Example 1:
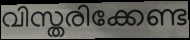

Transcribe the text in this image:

വിസ്തരിക്കേണ്ട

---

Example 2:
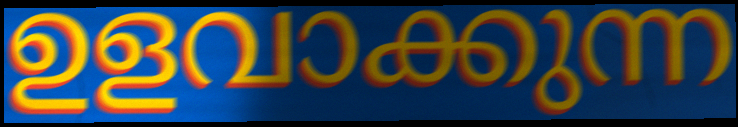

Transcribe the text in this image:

ഉളവാക്കുന്ന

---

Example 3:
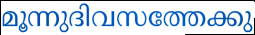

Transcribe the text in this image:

മൂന്നുദിവസത്തേക്കു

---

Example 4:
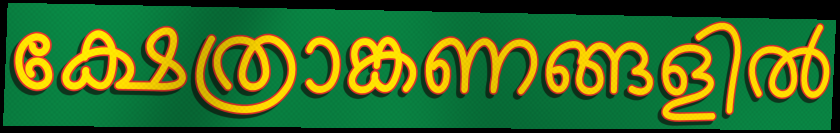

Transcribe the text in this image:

ക്ഷേത്രാങ്കണങ്ങളിൽ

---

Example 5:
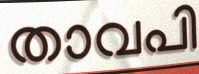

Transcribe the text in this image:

താവപി